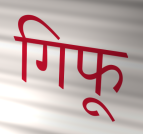
गिफू